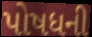
પોષધની